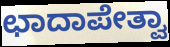
ಛಾದಾಪೇತ್ವಾ